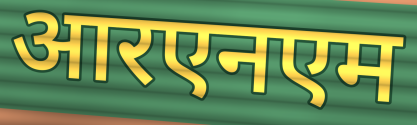
आरएनएम